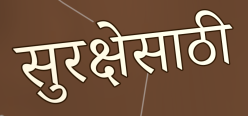
सुरक्षेसाठी